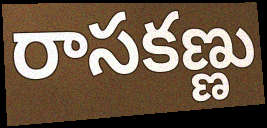
రాసకణ్ణు